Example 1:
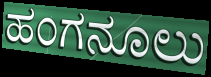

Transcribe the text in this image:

ಹಂಗನೂಲು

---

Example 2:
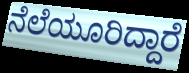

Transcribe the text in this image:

ನೆಲೆಯೂರಿದ್ದಾರೆ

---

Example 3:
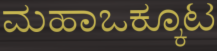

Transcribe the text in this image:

ಮಹಾಒಕ್ಕೂಟ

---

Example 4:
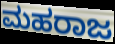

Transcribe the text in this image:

ಮಹರಾಜ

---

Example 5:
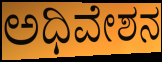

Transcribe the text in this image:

ಅಧಿವೇಶನ